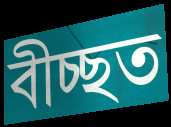
বীচ্ছত